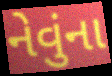
નેવુંના